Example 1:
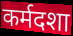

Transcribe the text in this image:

कर्मदशा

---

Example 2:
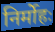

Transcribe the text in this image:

निर्मोहः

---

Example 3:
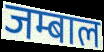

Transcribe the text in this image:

जम्बाल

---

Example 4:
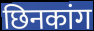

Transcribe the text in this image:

छिनकांग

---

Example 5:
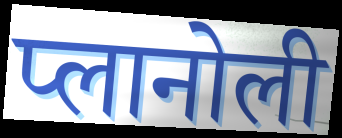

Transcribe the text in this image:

प्लानोली